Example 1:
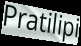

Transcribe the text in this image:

Pratilipi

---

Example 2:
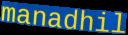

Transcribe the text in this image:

manadhil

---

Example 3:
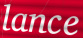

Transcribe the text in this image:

lance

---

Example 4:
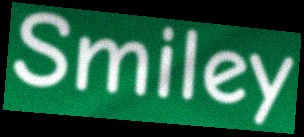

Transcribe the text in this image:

Smiley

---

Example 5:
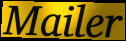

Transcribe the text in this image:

Mailer